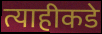
त्याहीकडे